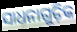
ସାଧନାଗୁଡ଼ିକ